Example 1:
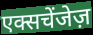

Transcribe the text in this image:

एक्सचेंजेज़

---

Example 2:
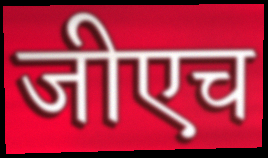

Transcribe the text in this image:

जीएच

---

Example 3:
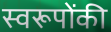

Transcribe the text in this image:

स्वरूपोंकी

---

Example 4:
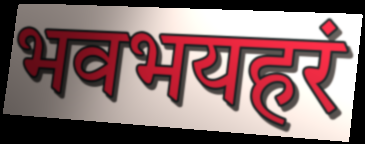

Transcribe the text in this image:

भवभयहरं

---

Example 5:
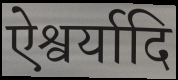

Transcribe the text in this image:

ऐश्वर्यादि